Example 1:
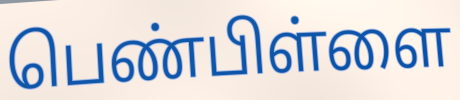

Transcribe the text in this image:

பெண்பிள்ளை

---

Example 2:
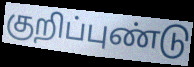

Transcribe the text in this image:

குறிப்புண்டு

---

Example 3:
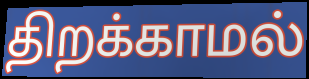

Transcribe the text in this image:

திறக்காமல்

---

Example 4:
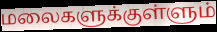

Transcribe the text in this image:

மலைகளுக்குள்ளும்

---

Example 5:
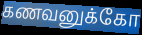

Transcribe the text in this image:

கணவனுக்கோ